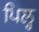
ਪਿਲ੍ਹ